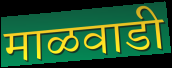
माळवाडी